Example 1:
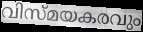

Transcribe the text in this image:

വിസ്മയകരവും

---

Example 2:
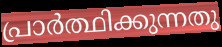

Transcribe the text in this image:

പ്രാർത്ഥിക്കുന്നതു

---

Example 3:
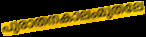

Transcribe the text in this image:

പുരാതനകാലംമുതലേ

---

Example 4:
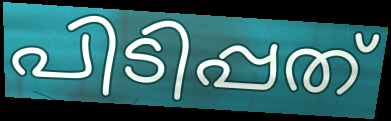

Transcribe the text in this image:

പിടിപ്പത്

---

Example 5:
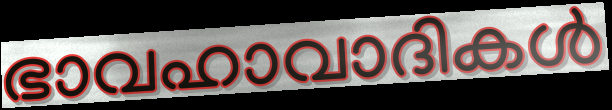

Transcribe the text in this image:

ഭാവഹാവാദികൾ